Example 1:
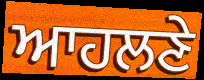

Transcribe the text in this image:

ਆਹਲਣੇ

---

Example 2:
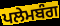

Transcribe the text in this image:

ਪਲੇਮਬੰਗ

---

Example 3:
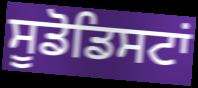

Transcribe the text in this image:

ਸੂਡੋਡਿਸਟਾਂ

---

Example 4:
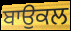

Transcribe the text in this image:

ਬਾਉਕਲ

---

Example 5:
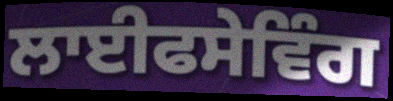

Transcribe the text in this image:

ਲਾਈਫਸੇਵਿੰਗ